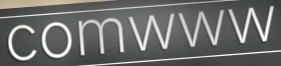
comwww